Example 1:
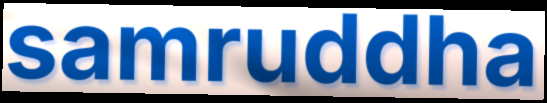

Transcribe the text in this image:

samruddha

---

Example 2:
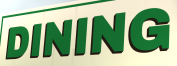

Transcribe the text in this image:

DINING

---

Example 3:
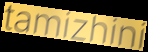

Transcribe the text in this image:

tamizhini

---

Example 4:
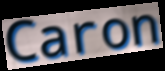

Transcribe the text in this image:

Caron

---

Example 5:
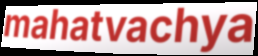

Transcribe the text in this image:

mahatvachya